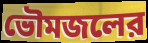
ভৌমজলের